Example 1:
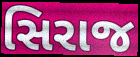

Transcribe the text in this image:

સિરાજ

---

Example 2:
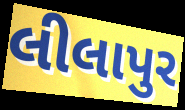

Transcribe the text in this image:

લીલાપુર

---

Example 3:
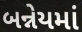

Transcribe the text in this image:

બન્નેયમાં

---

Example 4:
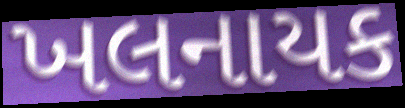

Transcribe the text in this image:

ખલનાયક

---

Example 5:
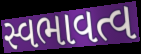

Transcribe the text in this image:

સ્વભાવત્વ